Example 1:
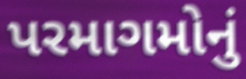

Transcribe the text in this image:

પરમાગમોનું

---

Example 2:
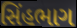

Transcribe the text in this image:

સિંહભાગ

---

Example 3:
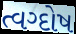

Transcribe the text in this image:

ત્વગ્દોષ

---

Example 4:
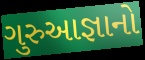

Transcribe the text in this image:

ગુરુઆજ્ઞાનો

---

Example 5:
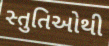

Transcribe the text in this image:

સ્તુતિઓથી